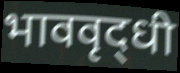
भाववृद्धी